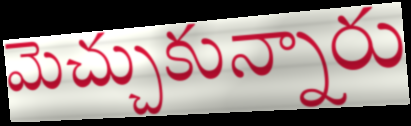
మెచ్చుకున్నారు